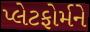
પ્લેટફોર્મને